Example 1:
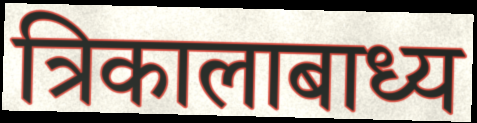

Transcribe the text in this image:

त्रिकालाबाध्य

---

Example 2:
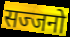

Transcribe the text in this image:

सज्जनो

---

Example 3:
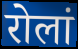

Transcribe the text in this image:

रोलां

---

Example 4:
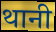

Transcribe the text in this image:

थानी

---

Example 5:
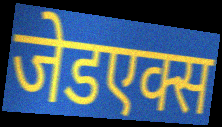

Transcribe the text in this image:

जेडएक्स